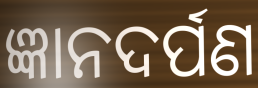
ଜ୍ଞାନଦର୍ପଣ